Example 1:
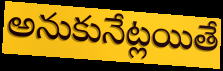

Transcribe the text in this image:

అనుకునేట్లయితే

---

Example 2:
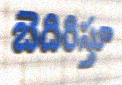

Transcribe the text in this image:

బెదిరిస్తూ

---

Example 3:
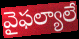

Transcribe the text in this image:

వైఫల్యాలే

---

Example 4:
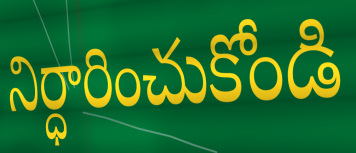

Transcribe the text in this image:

నిర్ధారించుకోండి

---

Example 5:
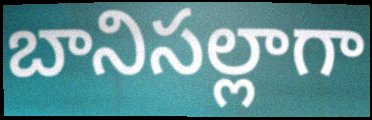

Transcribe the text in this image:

బానిసల్లాగా